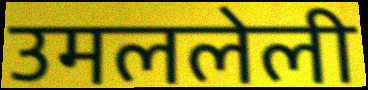
उमललेली